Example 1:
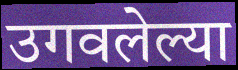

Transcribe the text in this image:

उगवलेल्या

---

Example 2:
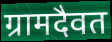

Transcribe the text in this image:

ग्रामदैवत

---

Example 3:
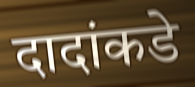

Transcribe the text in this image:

दादांकडे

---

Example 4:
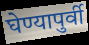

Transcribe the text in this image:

घेण्यापुर्वी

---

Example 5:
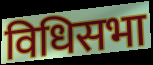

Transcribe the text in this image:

विधिसभा